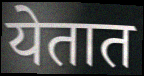
येतात